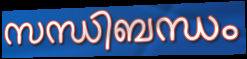
സന്ധിബന്ധം